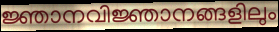
ജ്ഞാനവിജ്ഞാനങ്ങളിലും